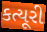
કત્યૂરી